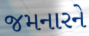
જમનારને